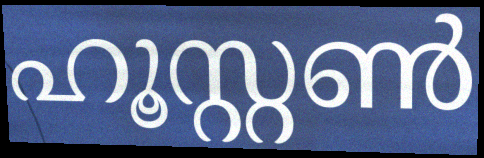
ഹൂസ്റ്റൺ